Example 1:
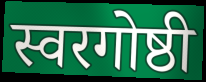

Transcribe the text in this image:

स्वरगोष्ठी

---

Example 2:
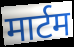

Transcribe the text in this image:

मार्टम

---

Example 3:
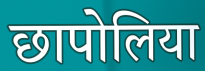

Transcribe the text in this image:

छापोलिया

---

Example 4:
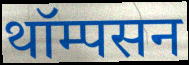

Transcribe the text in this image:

थॉम्पसन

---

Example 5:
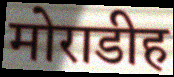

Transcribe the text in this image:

मोराडीह